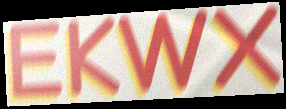
EKWX